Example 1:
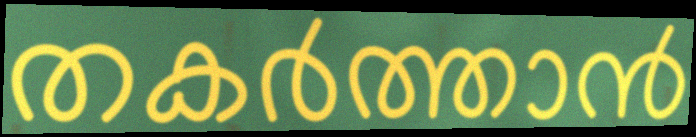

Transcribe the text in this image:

തകർത്താൻ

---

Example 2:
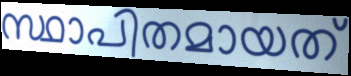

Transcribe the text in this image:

സ്ഥാപിതമായത്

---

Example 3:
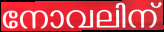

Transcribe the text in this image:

നോവലിന്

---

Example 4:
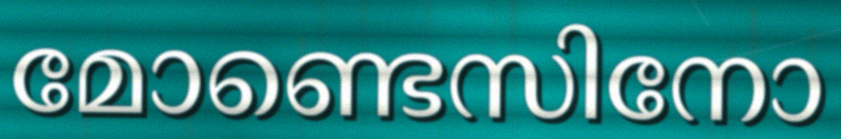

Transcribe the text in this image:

മോണ്ടെസിനോ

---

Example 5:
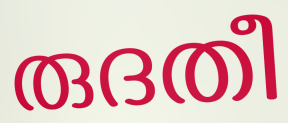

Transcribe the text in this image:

രുദതീ